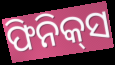
ଫିନିକ୍‌ସ